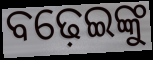
ବଢ଼େଇଙ୍କୁ